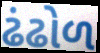
ઢંઢોળ